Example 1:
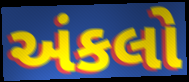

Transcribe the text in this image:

અંકલો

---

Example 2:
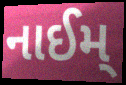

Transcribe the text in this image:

નાઈમ્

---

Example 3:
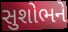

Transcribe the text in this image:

સુશોભને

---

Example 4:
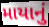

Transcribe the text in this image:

માયાનું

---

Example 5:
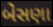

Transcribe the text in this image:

બેસણા